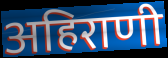
अहिराणी